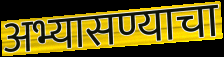
अभ्यासण्याचा